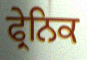
ਫ੍ਰੇਨਿਕ